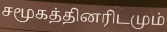
சமூகத்தினரிடமும்